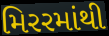
મિરરમાંથી